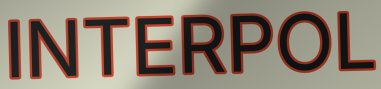
INTERPOL